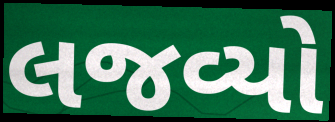
લજવ્યો